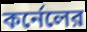
কর্নেলের